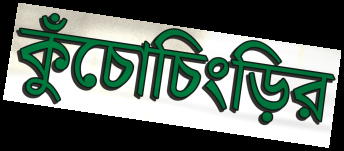
কুঁচোচিংড়ির